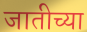
जातीच्या